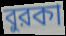
বুরকা